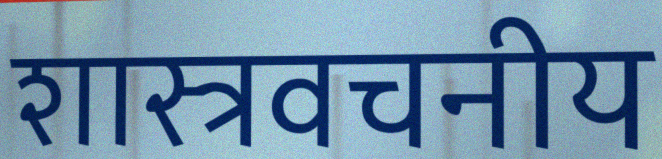
शास्त्रवचनीय